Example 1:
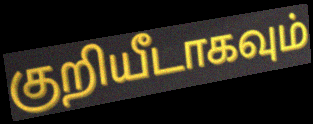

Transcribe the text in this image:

குறியீடாகவும்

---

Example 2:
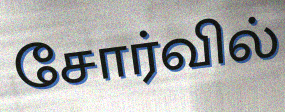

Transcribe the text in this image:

சோர்வில்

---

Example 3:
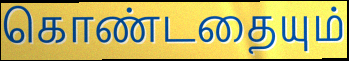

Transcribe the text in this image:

கொண்டதையும்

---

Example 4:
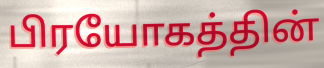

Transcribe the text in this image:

பிரயோகத்தின்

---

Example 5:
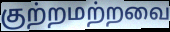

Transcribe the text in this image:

குற்றமற்றவை